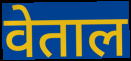
वेताल